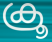
ക്രൂ